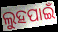
ଲୁହପାଇଁ